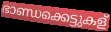
ഭാണ്ഡക്കെട്ടുകള്